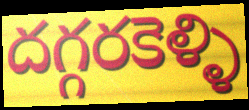
దగ్గరకెళ్ళి